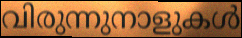
വിരുന്നുനാളുകൾ